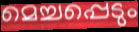
മെച്ചപ്പെടും